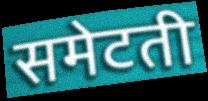
समेटती